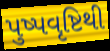
પુષ્પવૃષ્ટિથી